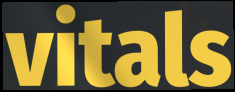
vitals